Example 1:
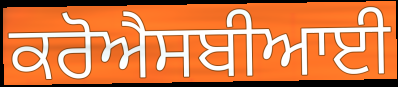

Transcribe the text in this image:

ਕਰੋਐਸਬੀਆਈ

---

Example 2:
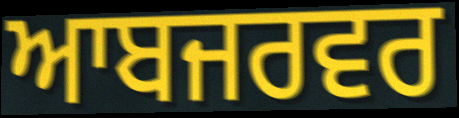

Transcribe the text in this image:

ਆਬਜਰਵਰ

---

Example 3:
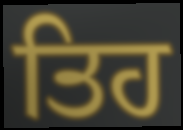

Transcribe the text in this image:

ਤਿਹ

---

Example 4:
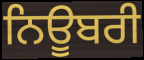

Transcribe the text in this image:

ਨਿਊਬਰੀ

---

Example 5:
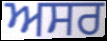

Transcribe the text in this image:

ਅਸਰ